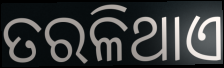
ତରଳିଥାଏ